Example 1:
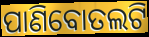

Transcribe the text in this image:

ପାଣିବୋତଲଟି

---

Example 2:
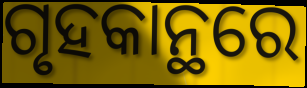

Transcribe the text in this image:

ଗୃହକାନ୍ଥରେ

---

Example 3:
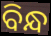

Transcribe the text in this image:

ବିନ୍ଧ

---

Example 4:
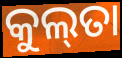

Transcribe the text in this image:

କୁଲ୍‌ତା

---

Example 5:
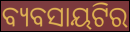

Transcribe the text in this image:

ବ୍ୟବସାୟଟିର